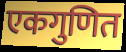
एकगुणित